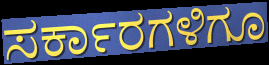
ಸರ್ಕಾರಗಳಿಗೂ